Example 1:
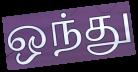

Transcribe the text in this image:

ஒந்து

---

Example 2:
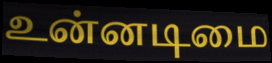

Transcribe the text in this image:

உன்னடிமை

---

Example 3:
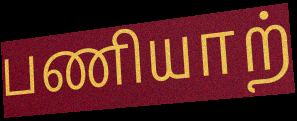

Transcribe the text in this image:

பணியாற்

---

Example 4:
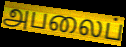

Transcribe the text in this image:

அபலைப்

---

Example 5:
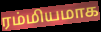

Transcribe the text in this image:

ரம்மியமாக